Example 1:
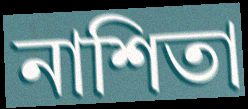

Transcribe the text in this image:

নাশিতা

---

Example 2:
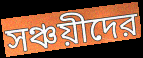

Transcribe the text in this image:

সঞ্চয়ীদের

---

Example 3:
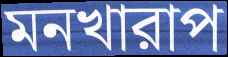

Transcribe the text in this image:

মনখারাপ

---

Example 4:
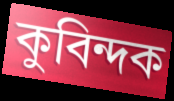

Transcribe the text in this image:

কুবিন্দক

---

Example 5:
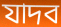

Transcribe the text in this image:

যাদব